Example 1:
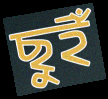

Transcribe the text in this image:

ছুইঁ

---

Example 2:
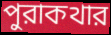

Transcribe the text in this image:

পুরাকথার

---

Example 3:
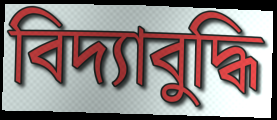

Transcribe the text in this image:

বিদ্যাবুদ্ধি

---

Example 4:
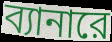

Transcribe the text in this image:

ব্যানারে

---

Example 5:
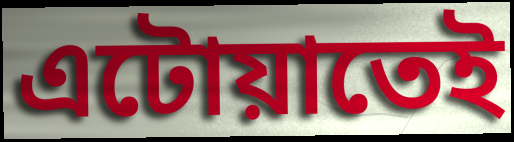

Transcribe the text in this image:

এটোয়াতেই